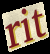
rit